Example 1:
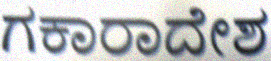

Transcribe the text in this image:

ಗಕಾರಾದೇಶ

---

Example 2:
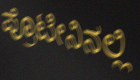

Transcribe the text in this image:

ಪ್ರೊಟೀನಿನಲ್ಲಿ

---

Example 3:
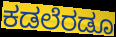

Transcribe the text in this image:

ಕಡಲೆರಡೂ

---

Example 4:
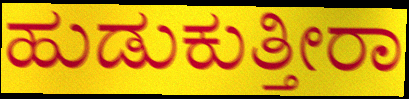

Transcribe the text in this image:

ಹುಡುಕುತ್ತೀರಾ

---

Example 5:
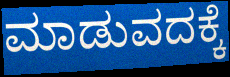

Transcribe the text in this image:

ಮಾಡುವದಕ್ಕೆ